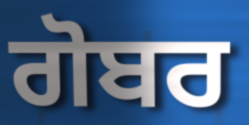
ਗੋਬਰ